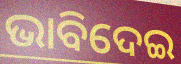
ଭାବିଦେଇ